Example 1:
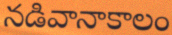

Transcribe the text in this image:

నడివానాకాలం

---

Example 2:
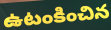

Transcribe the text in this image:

ఉటంకించిన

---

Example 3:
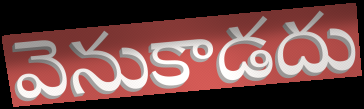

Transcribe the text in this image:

వెనుకాడదు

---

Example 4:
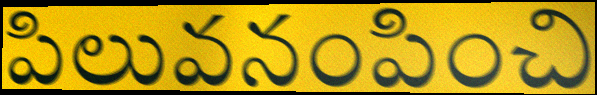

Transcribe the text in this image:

పిలువనంపించి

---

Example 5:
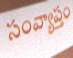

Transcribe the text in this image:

సంవ్యాప్తం